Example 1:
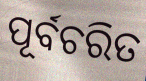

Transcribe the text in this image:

ପୂର୍ବଚରିତ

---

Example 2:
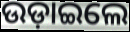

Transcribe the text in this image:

ଉଡ଼ାଇଲେ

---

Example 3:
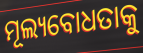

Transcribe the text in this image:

ମୂଲ୍ୟବୋଧତାକୁ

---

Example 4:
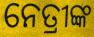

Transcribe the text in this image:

ନେତ୍ରୀଙ୍କ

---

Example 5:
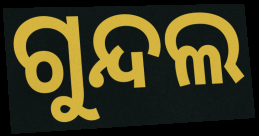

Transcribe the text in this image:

ଗୁନ୍ଦଲ